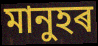
মানুহৰ